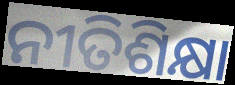
ନୀତିଶିକ୍ଷା